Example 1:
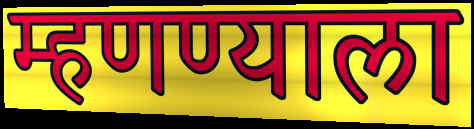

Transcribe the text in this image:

म्हणण्याला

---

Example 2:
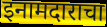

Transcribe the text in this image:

इनामदाराचा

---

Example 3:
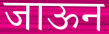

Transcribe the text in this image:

जाऊन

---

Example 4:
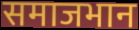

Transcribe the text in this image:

समाजभान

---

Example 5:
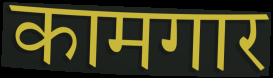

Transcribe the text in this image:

कामगार